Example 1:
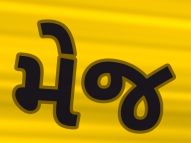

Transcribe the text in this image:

મેજ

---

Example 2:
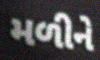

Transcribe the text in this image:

મળીને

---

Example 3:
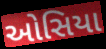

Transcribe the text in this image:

ઓસિયા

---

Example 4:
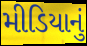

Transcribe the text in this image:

મીડિયાનું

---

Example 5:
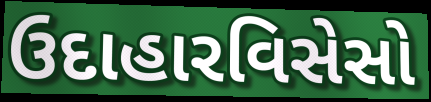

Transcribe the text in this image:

ઉદાહારવિસેસો